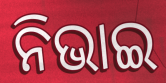
ନିଭାଇ